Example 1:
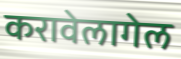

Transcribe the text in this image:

करावेलागेल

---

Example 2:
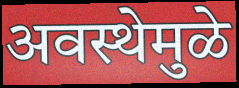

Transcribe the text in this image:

अवस्थेमुळे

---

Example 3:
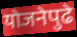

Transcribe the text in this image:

योजनेपुढे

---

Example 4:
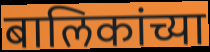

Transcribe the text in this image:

बालिकांच्या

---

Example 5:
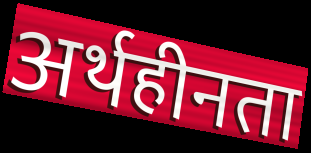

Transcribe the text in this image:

अर्थहीनता